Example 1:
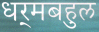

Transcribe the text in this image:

धर्मबहुल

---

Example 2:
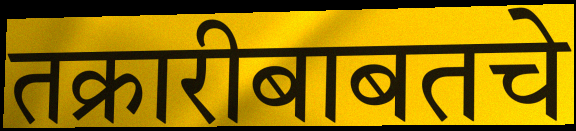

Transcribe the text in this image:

तक्रारीबाबतचे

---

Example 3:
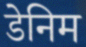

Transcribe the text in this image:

डेनिम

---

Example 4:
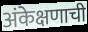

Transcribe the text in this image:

अंकेक्षणाची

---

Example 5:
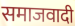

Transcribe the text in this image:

समाजवादी